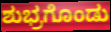
ಶುಭ್ರಗೊಂಡು